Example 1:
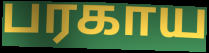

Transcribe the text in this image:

பரகாய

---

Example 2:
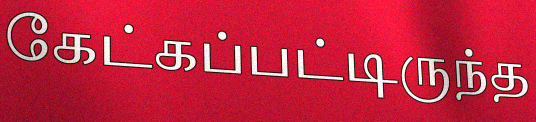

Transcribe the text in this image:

கேட்கப்பட்டிருந்த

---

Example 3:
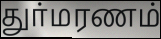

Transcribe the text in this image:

துர்மரணம்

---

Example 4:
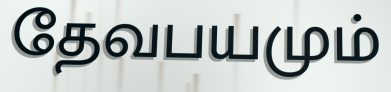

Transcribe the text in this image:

தேவபயமும்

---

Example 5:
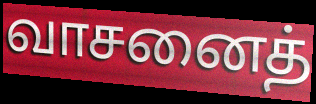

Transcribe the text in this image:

வாசனைத்